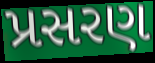
પ્રસરણ